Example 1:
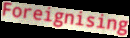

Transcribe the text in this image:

Foreignising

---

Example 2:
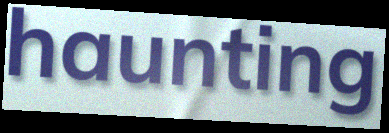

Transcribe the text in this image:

haunting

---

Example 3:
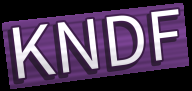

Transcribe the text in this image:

KNDF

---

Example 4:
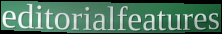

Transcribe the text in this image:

editorialfeatures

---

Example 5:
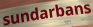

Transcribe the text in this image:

sundarbans